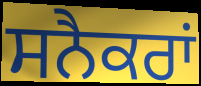
ਸਨੈਕਰਾਂ